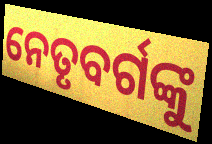
ନେତୃବର୍ଗଙ୍କୁ